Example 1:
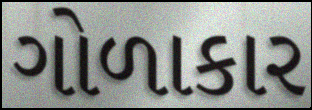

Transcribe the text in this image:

ગોળાકાર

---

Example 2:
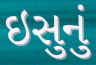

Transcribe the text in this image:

ઇસુનું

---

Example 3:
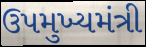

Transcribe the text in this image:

ઉપમુખ્યમંત્રી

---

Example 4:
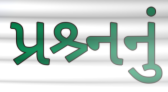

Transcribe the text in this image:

પ્રશ્ર્નનું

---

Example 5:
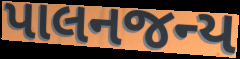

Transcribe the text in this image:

પાલનજન્ય